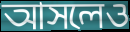
আসলেও